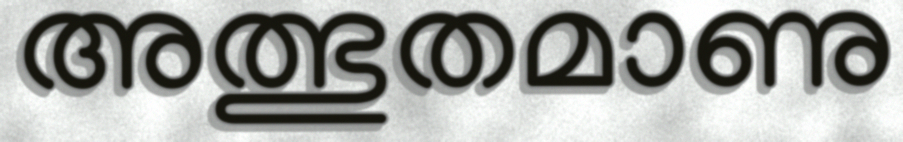
അത്ഭുതമാണു